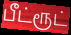
பீட்ரூட்